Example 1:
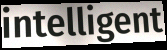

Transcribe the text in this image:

intelligent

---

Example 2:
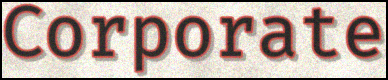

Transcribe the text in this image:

Corporate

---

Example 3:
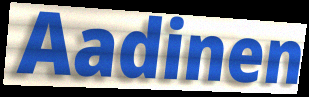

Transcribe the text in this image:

Aadinen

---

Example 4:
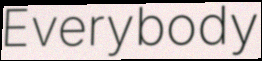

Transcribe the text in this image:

Everybody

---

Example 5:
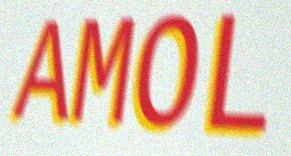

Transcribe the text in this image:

AMOL